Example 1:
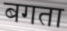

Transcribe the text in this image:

बगता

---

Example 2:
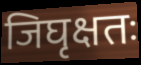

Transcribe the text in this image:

जिघृक्षतः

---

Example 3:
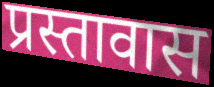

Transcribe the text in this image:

प्रस्तावास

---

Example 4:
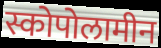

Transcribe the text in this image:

स्कोपोलामीन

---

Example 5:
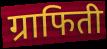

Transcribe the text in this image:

ग्राफिती